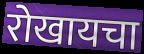
रोखायचा